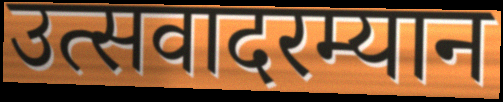
उत्सवादरम्यान